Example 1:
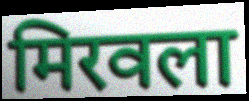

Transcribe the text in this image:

मिरवला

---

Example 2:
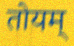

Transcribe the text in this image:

तोयम्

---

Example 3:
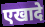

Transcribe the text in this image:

एखादे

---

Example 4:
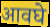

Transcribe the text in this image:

आवघे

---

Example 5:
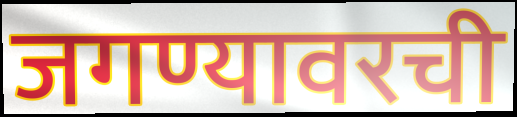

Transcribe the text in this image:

जगण्यावरची